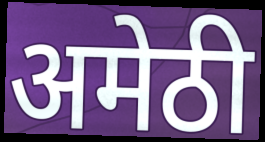
अमेठी